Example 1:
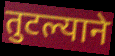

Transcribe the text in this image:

तुटल्याने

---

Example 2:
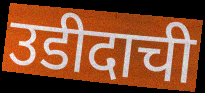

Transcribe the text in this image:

उडीदाची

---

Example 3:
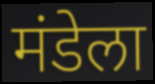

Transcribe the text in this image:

मंडेला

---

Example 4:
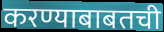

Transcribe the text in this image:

करण्याबाबतची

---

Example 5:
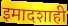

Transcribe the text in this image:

इमादशाही